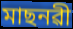
মাছনৱী